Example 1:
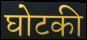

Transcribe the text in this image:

घोटकी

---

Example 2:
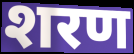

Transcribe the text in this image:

शरण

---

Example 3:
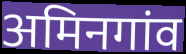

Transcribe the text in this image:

अमिनगांव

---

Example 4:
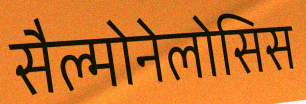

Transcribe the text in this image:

सैल्मोनेलोसिस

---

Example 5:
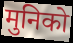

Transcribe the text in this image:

मुनिको